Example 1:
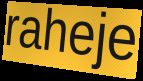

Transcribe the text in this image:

raheje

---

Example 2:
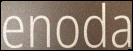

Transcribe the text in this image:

enoda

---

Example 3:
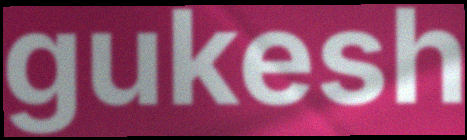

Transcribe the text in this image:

gukesh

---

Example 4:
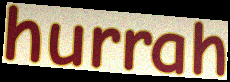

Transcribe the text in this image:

hurrah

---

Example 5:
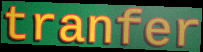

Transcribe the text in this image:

tranfer